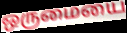
ஒருமையை